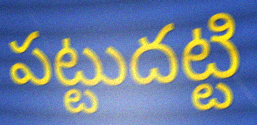
పట్టుదట్టి